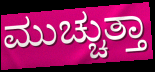
ಮುಚ್ಚುತ್ತಾ